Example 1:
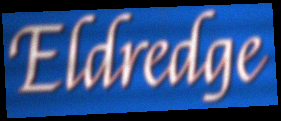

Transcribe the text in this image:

Eldredge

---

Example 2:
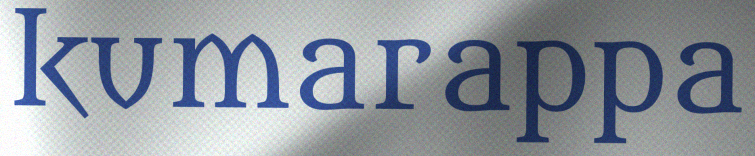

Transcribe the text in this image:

kumarappa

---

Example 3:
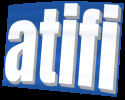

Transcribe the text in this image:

atifi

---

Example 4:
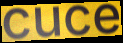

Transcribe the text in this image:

cuce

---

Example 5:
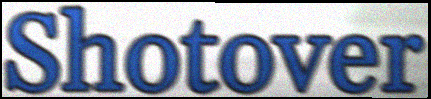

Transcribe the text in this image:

Shotover